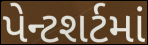
પેન્ટશર્ટમાં